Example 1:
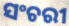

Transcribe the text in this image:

ସଂଚରୀ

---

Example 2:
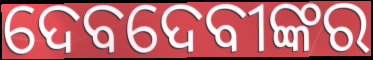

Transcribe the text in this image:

ଦେବଦେବୀଙ୍କର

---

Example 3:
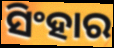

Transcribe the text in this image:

ସିଂହାର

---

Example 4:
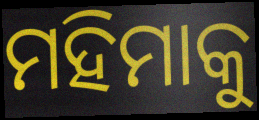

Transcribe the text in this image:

ମହିମାକୁ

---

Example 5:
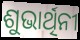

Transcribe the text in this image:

ଶୁଭାର୍ଥିନୀ